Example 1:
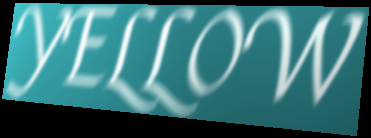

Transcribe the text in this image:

YELLOW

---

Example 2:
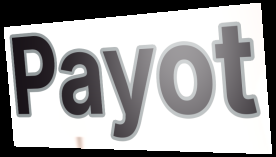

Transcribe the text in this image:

Payot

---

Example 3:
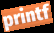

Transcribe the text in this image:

printf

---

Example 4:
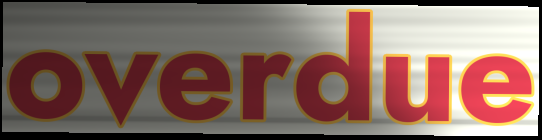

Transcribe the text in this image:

overdue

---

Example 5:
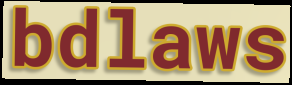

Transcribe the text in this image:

bdlaws